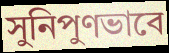
সুনিপুণভাবে